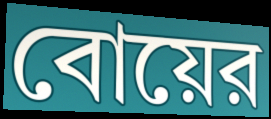
বোয়ের